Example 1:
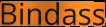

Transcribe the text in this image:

Bindass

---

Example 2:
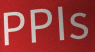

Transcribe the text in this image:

PPIs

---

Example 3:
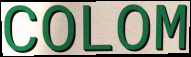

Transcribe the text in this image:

COLOM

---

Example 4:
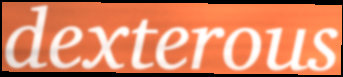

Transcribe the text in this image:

dexterous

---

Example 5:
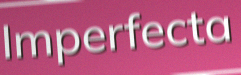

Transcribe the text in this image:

Imperfecta